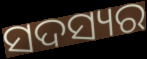
ସଦସ୍ୟର